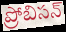
ప్రోబిసన్